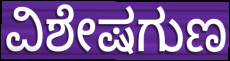
ವಿಶೇಷಗುಣ